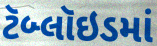
ટૅબ્લૉઇડમાં